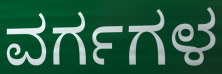
ವರ್ಗಗಳ